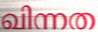
ഖിന്നത